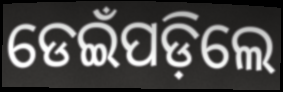
ଡେଇଁପଡ଼ିଲେ